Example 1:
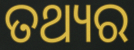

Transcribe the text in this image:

ତଥ୍ୟର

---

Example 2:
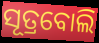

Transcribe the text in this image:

ସୂତ୍ରବୋଲି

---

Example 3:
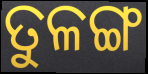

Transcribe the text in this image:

ତୁଳଙ୍ଗ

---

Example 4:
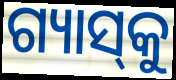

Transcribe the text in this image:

ଗ୍ୟାସ୍‌କୁ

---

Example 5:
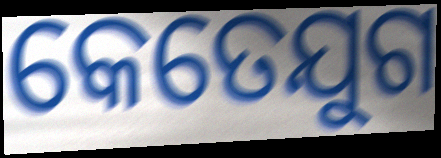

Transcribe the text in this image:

କେତେଯୁଗ